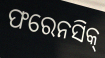
ଫରେନସିକ୍